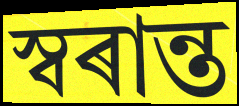
স্বৰান্ত